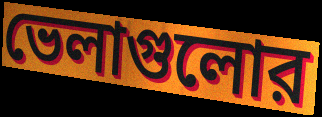
ভেলাগুলোর